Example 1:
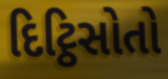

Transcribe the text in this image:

દિટ્ઠિસોતો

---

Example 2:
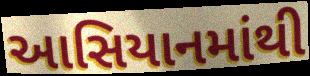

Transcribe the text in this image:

આસિયાનમાંથી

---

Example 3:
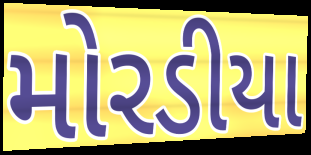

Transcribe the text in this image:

મોરડીયા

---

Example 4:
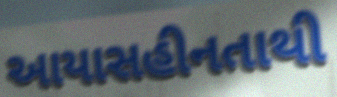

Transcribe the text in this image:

આયાસહીનતાથી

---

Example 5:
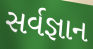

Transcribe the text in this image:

સર્વજ્ઞાન